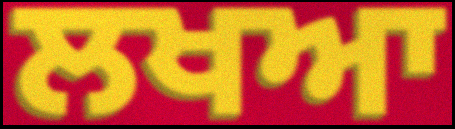
ਲਖਆ